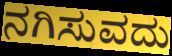
ನಗಿಸುವದು